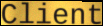
Client